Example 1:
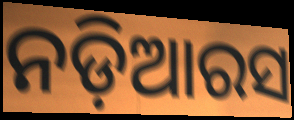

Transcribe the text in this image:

ନଡ଼ିଆରସ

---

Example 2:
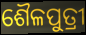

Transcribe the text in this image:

ଶୈଳପୁତ୍ରୀ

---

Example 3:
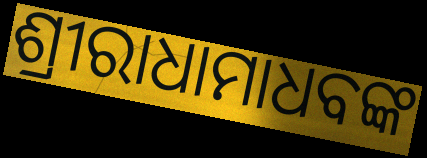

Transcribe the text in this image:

ଶ୍ରୀରାଧାମାଧବଙ୍କ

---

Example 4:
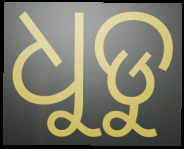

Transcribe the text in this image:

ଧୁଡୁ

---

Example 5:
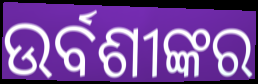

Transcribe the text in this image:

ଉର୍ବଶୀଙ୍କର